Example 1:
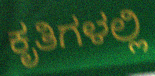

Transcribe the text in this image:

ಕೃತಿಗಳಲ್ಲಿ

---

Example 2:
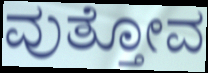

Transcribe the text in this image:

ವುತ್ತೋವ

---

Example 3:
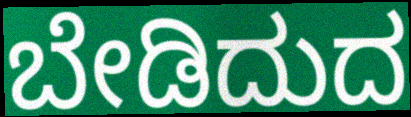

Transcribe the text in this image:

ಬೇಡಿದುದ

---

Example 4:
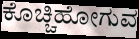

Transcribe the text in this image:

ಕೊಚ್ಚಿಹೋಗುವ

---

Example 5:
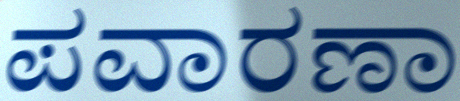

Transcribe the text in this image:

ಪವಾರಣಾ